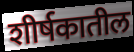
शीर्षकातील